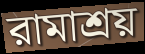
রামাশ্রয়